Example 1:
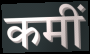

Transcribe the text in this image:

कमीं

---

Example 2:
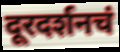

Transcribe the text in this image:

दूरदर्शनचं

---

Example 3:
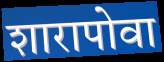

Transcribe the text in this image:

शारापोवा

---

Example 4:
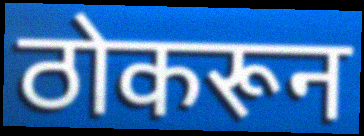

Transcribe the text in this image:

ठोकरून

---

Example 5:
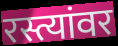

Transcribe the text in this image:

रस्त्यांवर